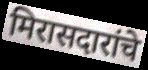
मिरासदारांचे